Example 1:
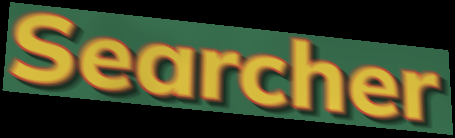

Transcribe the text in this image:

Searcher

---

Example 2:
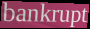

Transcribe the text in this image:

bankrupt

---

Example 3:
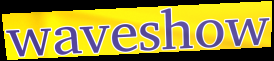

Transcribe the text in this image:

waveshow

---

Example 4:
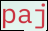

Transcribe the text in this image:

paj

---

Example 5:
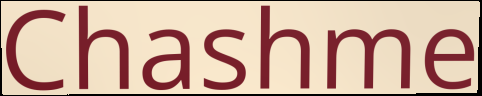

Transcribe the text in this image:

Chashme